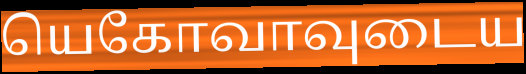
யெகோவாவுடைய